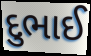
દુભાઈ